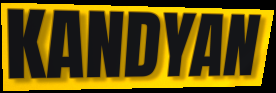
KANDYAN